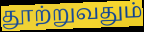
தூற்றுவதும்